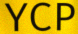
YCP